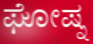
ಘೋಷ್ನ